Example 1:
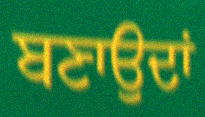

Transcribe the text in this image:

ਬਣਾਉਦਾਂ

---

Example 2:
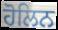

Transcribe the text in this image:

ਹੋਲਿਨ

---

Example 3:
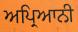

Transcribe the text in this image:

ਅਪ੍ਰਿਆਨੀ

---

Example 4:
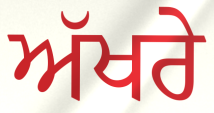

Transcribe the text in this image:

ਅੱਖਰੇ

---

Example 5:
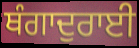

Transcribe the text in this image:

ਥੰਗਾਦੁਰਾਈ